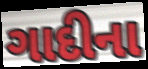
ગાદીના